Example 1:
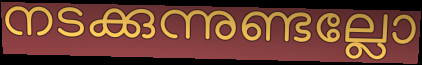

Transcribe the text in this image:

നടക്കുന്നുണ്ടല്ലോ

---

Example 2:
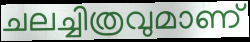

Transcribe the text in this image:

ചലച്ചിത്രവുമാണ്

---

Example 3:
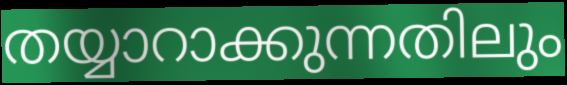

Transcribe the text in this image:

തയ്യാറാക്കുന്നതിലും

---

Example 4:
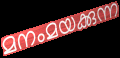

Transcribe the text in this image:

മനംമയക്കുന്ന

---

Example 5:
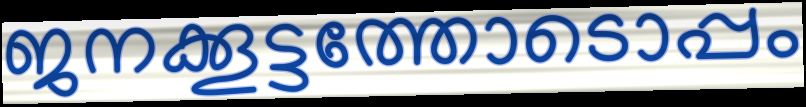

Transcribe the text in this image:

ജനക്കൂട്ടത്തോടൊപ്പം